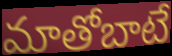
మాతోబాటే